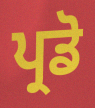
ਪ੍ਰਡੋ